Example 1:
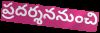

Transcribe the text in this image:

ప్రదర్శననుంచి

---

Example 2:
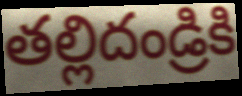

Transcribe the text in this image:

తల్లిదండ్రికి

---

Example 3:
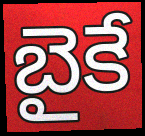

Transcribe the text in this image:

బైకే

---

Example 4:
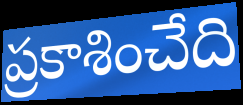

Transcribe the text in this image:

ప్రకాశించేది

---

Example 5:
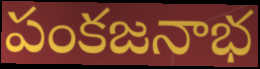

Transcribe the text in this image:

పంకజనాభ